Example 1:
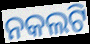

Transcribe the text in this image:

ନକଲଟି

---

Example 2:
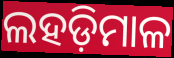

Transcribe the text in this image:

ଲହଡ଼ିମାଳ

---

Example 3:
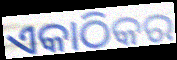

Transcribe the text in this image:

ଏକାଠିକର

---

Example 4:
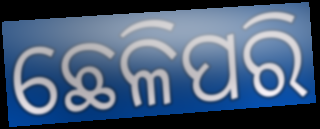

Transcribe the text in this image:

ଛେଳିପରି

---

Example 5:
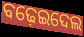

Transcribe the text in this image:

ବଢ଼େଇଦେଲ